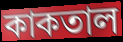
কাকতাল